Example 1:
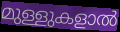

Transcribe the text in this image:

മുള്ളുകളാൽ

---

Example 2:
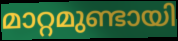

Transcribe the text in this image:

മാറ്റമുണ്ടായി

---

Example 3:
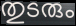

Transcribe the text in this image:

തുടരും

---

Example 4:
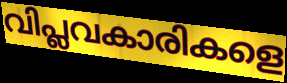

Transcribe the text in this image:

വിപ്ലവകാരികളെ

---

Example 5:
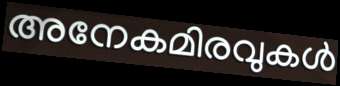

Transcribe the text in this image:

അനേകമിരവുകൾ